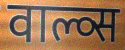
वाल्व्स